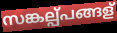
സങ്കല്പ്പങ്ങള്